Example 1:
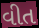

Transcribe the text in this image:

વીત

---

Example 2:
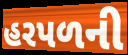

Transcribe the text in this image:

હરપળની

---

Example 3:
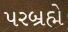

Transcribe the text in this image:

પરબ્રહ્મે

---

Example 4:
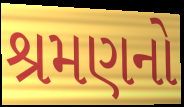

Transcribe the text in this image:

શ્રમણનો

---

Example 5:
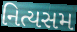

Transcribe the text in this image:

નિત્યસમ